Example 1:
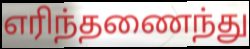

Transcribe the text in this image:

எரிந்தணைந்து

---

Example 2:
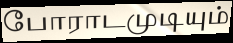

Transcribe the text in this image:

போராடமுடியும்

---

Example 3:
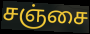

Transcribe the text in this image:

சஞ்சை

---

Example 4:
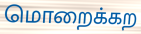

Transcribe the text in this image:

மொறைக்கற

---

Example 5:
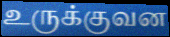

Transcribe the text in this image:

உருக்குவன